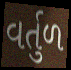
વર્તુળ